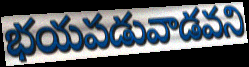
భయపడువాడవని